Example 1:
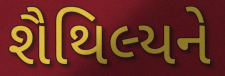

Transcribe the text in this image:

શૈથિલ્યને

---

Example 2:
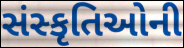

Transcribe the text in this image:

સંસ્કૃતિઓની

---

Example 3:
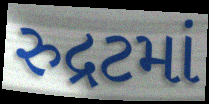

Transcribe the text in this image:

રુદ્રટમાં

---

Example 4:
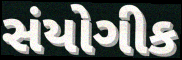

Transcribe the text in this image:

સંયોગીક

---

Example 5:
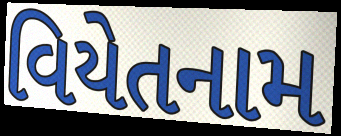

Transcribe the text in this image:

વિયેતનામ